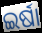
ଇର୍ଷା